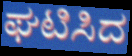
ಘಟಿಸಿದ